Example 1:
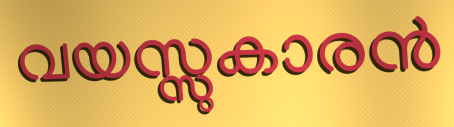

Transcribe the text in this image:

വയസ്സുകാരൻ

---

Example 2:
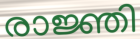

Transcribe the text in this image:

രാജ്ഞി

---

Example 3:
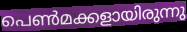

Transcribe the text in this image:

പെൺമക്കളായിരുന്നു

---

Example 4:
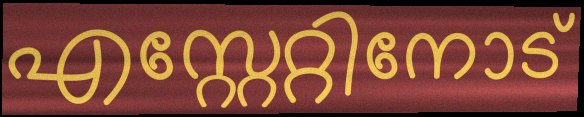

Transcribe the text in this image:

എസ്റ്റേറ്റിനോട്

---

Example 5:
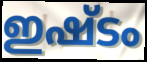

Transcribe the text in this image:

ഇഷ്ടം